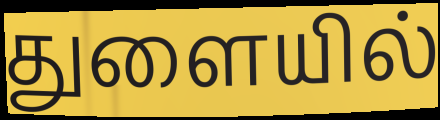
துளையில்